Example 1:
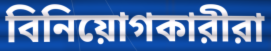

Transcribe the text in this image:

বিনিয়োগকারীরা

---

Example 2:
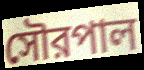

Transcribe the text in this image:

সৌরপাল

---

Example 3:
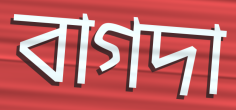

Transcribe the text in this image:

বাগদা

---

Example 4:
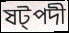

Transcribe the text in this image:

ষট্‌পদী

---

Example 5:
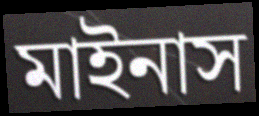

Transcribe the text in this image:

মাইনাস